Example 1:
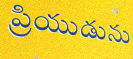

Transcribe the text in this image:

ప్రియుడును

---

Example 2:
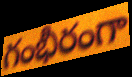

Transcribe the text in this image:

గంభీరంగా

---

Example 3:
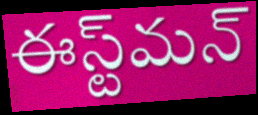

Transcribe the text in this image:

ఈస్ట్‌మన్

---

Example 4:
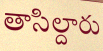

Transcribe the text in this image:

తాసిల్దారు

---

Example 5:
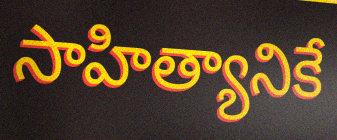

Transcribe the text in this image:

సాహిత్యానికే